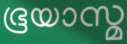
ഭൂയാസ്മ